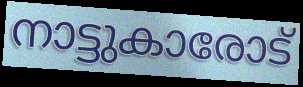
നാട്ടുകാരോട്